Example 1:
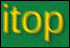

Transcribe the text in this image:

itop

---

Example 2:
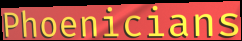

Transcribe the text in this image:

Phoenicians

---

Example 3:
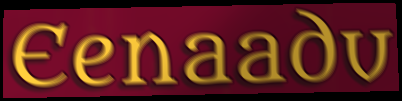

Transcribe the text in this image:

Eenaadu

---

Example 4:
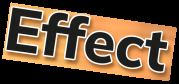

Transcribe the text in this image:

Effect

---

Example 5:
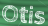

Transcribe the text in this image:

Otis